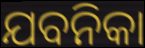
ଯବନିକା